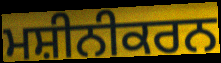
ਮਸ਼ੀਨੀਕਰਨ